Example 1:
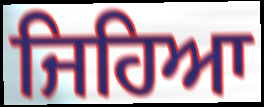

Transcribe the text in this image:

ਜਿਹਿਆ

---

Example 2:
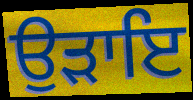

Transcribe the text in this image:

ਉੜਾਇ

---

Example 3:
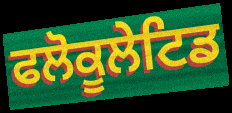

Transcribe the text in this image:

ਫਲੋਕੂਲੇਟਿਡ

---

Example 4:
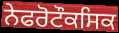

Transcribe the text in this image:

ਨੇਫਰੋਟੌਕਸਿਕ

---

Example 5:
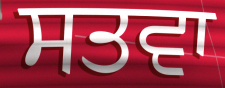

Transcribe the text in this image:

ਸਤਵਾ